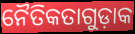
ନୈତିକତାଗୁଡ଼ାକ